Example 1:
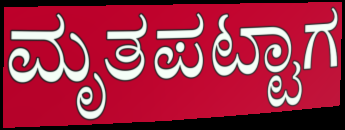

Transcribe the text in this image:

ಮೃತಪಟ್ಟಾಗ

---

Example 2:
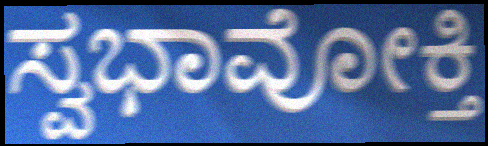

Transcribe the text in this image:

ಸ್ವಭಾವೋಕ್ತಿ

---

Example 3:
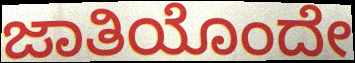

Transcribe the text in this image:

ಜಾತಿಯೊಂದೇ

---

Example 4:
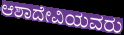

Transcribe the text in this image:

ಆಶಾದೇವಿಯವರು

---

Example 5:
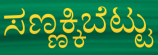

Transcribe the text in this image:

ಸಣ್ಣಕ್ಕಿಬೆಟ್ಟು